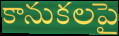
కానుకలపై